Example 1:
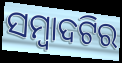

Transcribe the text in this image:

ସମ୍ବାଦଟିର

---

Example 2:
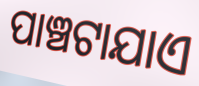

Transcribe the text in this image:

ପାଞ୍ଚଟାଯାଏ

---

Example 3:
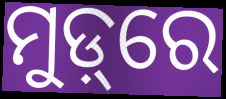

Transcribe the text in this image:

ମୁଡ଼୍‌ରେ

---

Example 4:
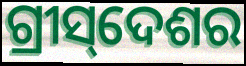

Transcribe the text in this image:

ଗ୍ରୀସ୍‌ଦେଶର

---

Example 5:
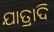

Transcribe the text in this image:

ଯାତ୍ରାଦି